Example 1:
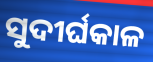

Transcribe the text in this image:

ସୁଦୀର୍ଘକାଳ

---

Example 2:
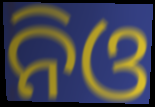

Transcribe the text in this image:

ନିଓ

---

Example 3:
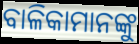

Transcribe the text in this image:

ବାଳିକାମାନଙ୍କୁ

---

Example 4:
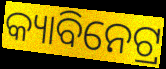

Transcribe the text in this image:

କ୍ୟାବିନେଟ୍ର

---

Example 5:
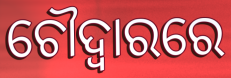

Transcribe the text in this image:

ଚୌଦ୍ୱାରରେ